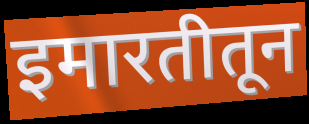
इमारतीतून